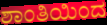
ಶಾಂತಿಯಿಂದ